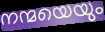
നന്മയെയും